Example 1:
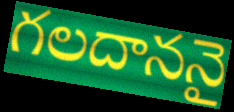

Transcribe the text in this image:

గలదాననై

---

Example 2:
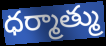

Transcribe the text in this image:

ధర్మాత్ము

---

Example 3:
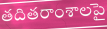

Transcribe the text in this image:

తదితరాంశాలపై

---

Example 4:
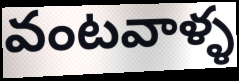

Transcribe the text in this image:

వంటవాళ్ళ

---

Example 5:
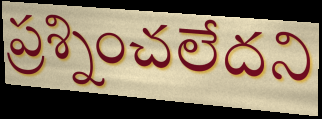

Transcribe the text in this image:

ప్రశ్నించలేదని